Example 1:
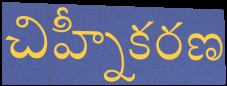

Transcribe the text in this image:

చిహ్నీకరణ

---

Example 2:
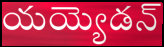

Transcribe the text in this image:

యయ్యెడన్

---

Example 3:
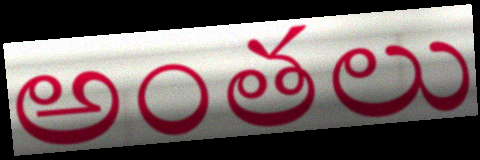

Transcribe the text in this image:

అంతలు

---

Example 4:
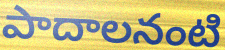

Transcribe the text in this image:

పాదాలనంటి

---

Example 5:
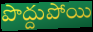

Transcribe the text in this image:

పొద్దుపోయి